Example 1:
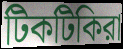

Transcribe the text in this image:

টিকটিকিরা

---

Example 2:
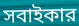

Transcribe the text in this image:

সবাইকার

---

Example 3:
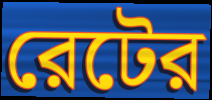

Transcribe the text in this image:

রেটের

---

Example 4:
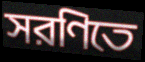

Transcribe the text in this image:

সরণিতে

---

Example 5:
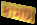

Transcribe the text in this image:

দামটা